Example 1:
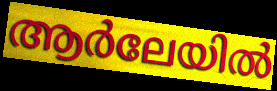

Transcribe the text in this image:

ആർലേയിൽ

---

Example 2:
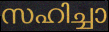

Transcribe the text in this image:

സഹിച്ചാ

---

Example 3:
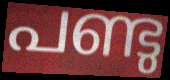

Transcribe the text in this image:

പണ്ടു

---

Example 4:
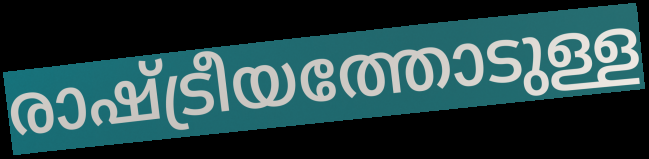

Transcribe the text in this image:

രാഷ്ട്രീയത്തോടുള്ള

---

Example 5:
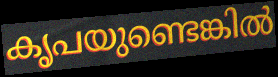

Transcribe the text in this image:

കൃപയുണ്ടെങ്കിൽ